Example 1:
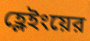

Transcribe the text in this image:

হ্লেইংয়ের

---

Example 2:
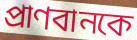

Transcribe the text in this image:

প্রাণবানকে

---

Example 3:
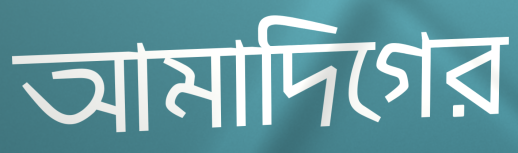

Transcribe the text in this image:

আমাদিগের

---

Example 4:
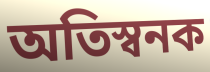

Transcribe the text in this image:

অতিস্বনক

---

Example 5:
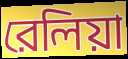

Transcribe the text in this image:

রেলিয়া